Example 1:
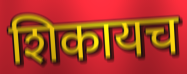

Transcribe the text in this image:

शिकायच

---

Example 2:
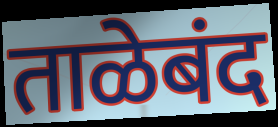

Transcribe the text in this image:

ताळेबंद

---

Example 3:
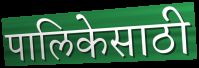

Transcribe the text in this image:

पालिकेसाठी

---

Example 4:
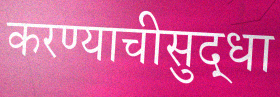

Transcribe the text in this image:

करण्याचीसुद्धा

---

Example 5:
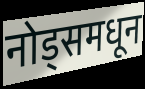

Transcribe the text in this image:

नोड्समधून